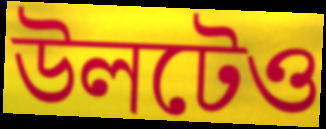
উলটেও